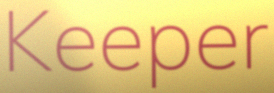
Keeper